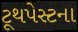
ટૂથપેસ્ટના